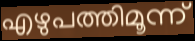
എഴുപത്തിമൂന്ന്